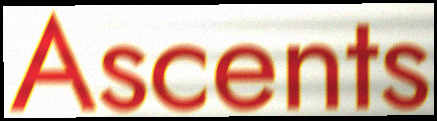
Ascents